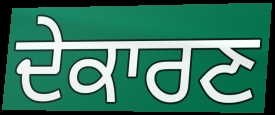
ਦੇਕਾਰਣ